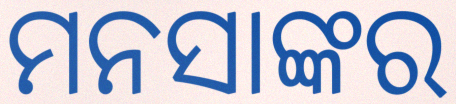
ମନସାଙ୍କର